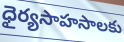
ధైర్యసాహసాలకు